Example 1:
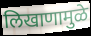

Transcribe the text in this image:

लिखाणामुळे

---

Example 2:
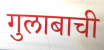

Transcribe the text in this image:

गुलाबाची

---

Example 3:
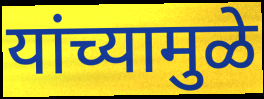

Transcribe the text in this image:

यांच्यामुळे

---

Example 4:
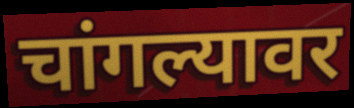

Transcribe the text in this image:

चांगल्यावर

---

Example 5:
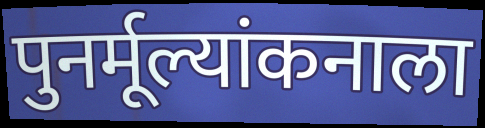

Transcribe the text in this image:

पुनर्मूल्यांकनाला